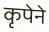
कृपेने